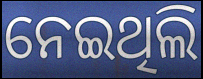
ନେଇଥିଲି